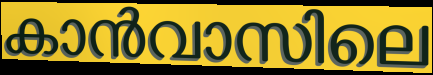
കാൻവാസിലെ